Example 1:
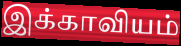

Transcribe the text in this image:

இக்காவியம்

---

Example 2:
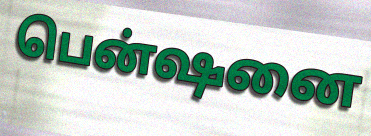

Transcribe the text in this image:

பென்ஷனை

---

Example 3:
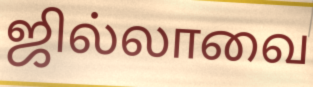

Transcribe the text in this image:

ஜில்லாவை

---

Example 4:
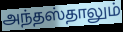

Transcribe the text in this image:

அந்தஸ்தாலும்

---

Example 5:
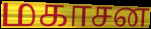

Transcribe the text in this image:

மகாசன